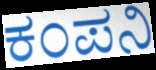
ಕಂಪನಿ